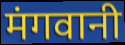
मंगवानी